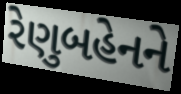
રેણુબહેનને